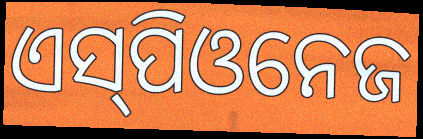
ଏସ୍‌ପିଓନେଜ